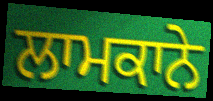
ਲਾਮਕਾਨੇ